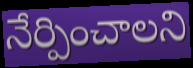
నేర్పించాలని